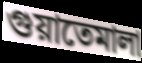
গুয়াতেমালা